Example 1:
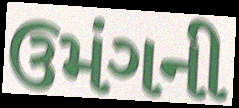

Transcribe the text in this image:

ઉમંગની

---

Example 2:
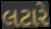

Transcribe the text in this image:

લટારે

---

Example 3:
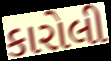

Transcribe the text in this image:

કારોલી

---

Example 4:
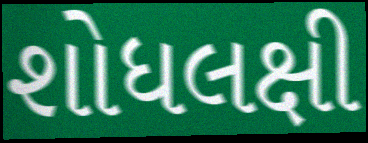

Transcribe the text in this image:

શોધલક્ષી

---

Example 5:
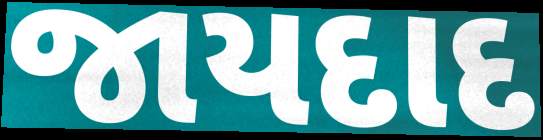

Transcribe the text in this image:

જાયદાદ